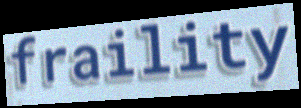
fraility